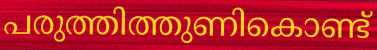
പരുത്തിത്തുണികൊണ്ട്